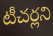
టీచర్లని